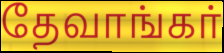
தேவாங்கர்